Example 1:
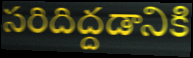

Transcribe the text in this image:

సరిదిద్దడానికి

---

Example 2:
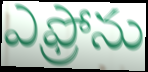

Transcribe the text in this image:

ఎఫ్రోను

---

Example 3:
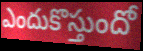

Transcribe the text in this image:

ఎందుకొస్తుందో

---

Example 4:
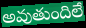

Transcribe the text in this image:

అవుతుందిలే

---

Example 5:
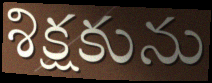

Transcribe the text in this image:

శిక్షకును